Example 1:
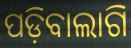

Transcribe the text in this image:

ପଡ଼ିବାଲାଗି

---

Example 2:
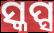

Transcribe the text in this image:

ସ୍କପ୍ସ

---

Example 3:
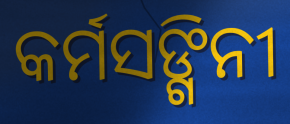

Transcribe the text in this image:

କର୍ମସଙ୍ଗିନୀ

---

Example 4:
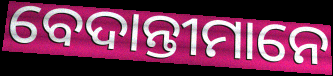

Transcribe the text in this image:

ବେଦାନ୍ତୀମାନେ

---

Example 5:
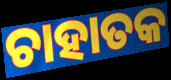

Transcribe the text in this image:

ଚାହାତକ